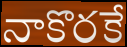
నాకొరకే